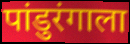
पांडुरंगाला